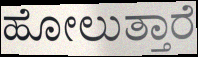
ಹೋಲುತ್ತಾರೆ